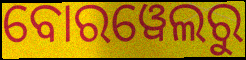
ବୋରୱେଲରୁ